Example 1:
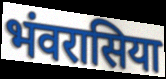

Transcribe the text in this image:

भंवरासिया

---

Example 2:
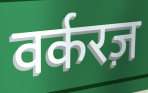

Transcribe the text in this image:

वर्करज़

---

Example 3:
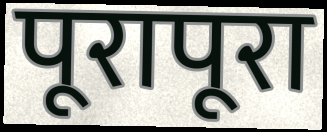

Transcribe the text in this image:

पूरापूरा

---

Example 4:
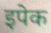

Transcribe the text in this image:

इपेक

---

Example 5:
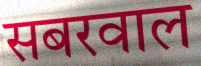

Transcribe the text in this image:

सबरवाल